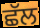
ਛੱਲ